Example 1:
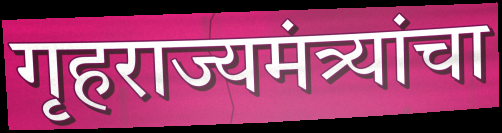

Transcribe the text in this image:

गृहराज्यमंत्र्यांचा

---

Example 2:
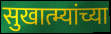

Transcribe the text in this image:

सुखात्म्यांच्या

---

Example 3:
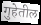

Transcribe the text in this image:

गुहेतील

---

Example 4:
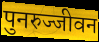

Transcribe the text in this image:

पुनरुज्‍जीवन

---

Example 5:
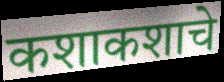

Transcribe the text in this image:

कशाकशाचे